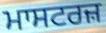
ਮਾਸਟਰਜ਼